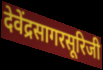
देवेंद्रसागरसूरिजी